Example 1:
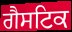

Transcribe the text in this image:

ਗੈਸਟਿਕ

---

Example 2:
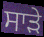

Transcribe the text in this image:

ਸਾੜੇ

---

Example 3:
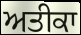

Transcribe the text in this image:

ਅਤੀਕਾ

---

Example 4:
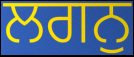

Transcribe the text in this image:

ਲਗਨੁ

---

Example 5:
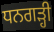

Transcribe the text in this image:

ਧਨਗੜ੍ਹੀ